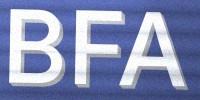
BFA